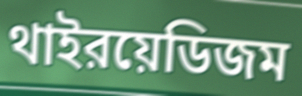
থাইরয়েডিজম